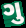
ગુ